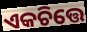
ଏକଚିତ୍ତେ